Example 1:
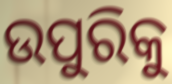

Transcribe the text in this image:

ଉପୁରିକୁ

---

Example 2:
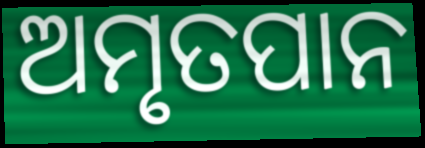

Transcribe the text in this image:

ଅମୃତପାନ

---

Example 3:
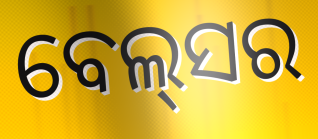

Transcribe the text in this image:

ବେଲ୍‌ସର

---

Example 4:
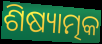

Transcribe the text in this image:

ଶିଷ୍ୟାତ୍ମକ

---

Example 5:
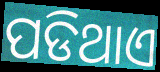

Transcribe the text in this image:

ପଡିଥାଏ